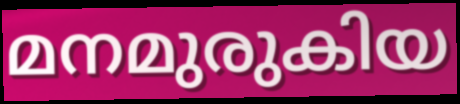
മനമുരുകിയ